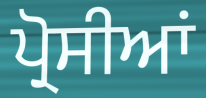
ਪ੍ਰੋਸੀਆਂ